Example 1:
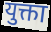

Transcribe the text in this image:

युक्ता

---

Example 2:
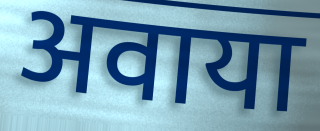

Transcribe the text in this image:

अवाया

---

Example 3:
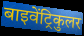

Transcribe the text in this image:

बाइवेंट्रिकुलर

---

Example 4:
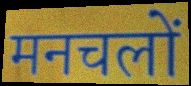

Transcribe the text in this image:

मनचलों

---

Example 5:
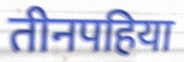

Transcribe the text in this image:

तीनपहिया